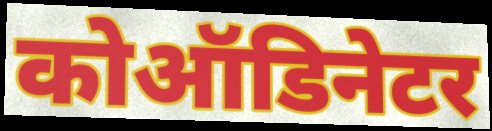
कोऑडिनेटर